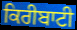
ਕਿਰੀਬਾਟੀ